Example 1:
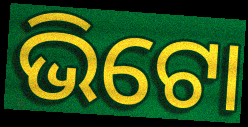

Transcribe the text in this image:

ଭିଟୋ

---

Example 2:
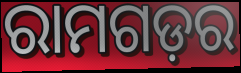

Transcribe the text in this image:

ରାମଗଡ଼ର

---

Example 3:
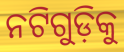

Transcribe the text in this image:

ନଟିଗୁଡ଼ିକୁ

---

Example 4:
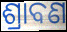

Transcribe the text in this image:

ଶ୍ରାବଣ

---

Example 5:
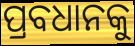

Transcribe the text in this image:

ପ୍ରବଧାନକୁ